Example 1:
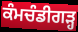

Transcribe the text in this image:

ਕੰਮਚੰਡੀਗੜ੍ਹ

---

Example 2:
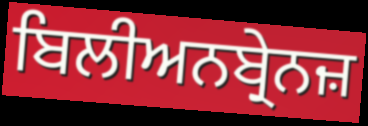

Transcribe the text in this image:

ਬਿਲੀਅਨਬ੍ਰੇਨਜ਼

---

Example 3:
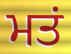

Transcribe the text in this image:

ਮਤਂ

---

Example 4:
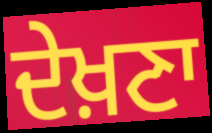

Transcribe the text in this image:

ਦੇਖ਼ਣਾ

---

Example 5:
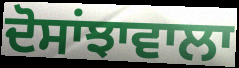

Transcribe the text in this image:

ਦੋਸਾਂਝਾਵਾਲਾ